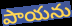
పాయను